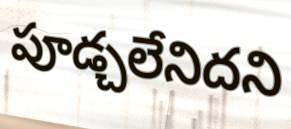
పూడ్చలేనిదని